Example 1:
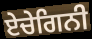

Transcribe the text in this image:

ਏਚੇਗਿਨੀ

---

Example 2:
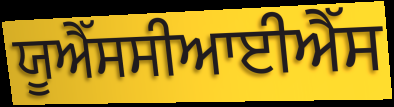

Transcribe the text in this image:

ਯੂਐੱਸਸੀਆਈਐੱਸ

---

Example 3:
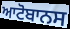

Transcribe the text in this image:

ਆਟੋਬਾਨਸ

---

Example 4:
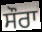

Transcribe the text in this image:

ਸੌਰਾ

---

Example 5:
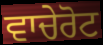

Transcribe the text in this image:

ਵਾਚੇਰੋਟ